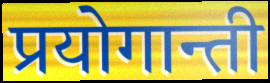
प्रयोगान्ती